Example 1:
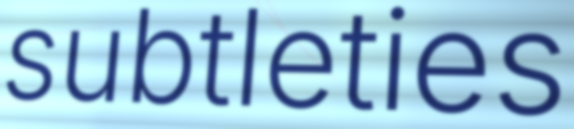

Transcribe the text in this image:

subtleties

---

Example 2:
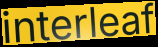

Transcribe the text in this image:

interleaf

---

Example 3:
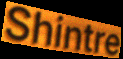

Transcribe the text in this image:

Shintre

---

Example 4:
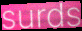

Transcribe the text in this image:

surds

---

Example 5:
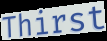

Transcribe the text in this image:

Thirst